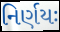
નિર્ણયઃ